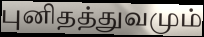
புனிதத்துவமும்